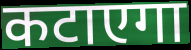
कटाएगा